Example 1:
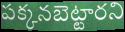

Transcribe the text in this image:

పక్కనబెట్టారని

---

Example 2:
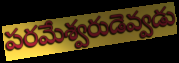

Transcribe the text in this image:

పరమేశ్వరుడెవ్వడు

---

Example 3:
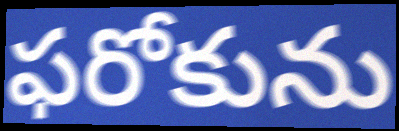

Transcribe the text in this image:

ఫరోకును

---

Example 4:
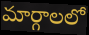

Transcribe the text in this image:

మార్గాలలో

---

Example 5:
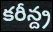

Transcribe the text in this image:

కరీన్ద్ర